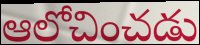
ఆలోచించడు